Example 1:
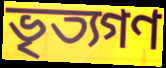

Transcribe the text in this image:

ভৃত্যগণ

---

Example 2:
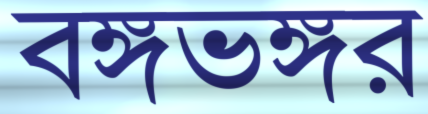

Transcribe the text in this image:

বঙ্গভঙ্গর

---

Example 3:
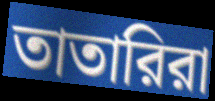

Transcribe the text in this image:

তাতারিরা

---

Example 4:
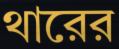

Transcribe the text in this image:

থারের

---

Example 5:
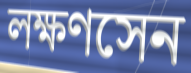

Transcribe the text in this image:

লক্ষণসেন